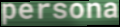
persona